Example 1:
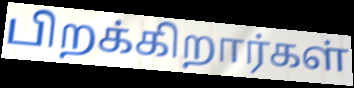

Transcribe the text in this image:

பிறக்கிறார்கள்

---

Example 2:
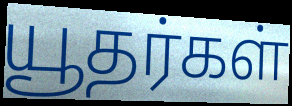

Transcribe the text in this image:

யூதர்கள்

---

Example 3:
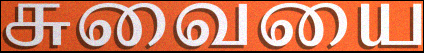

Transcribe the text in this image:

சுவையை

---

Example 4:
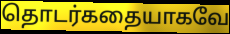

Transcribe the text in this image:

தொடர்கதையாகவே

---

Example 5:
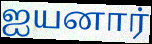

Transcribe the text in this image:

ஐயனார்